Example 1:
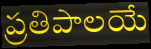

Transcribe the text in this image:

ప్రతిపాలయే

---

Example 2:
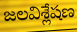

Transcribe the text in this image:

జలవిశ్లేషణ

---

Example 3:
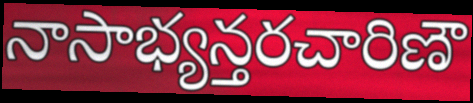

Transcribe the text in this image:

నాసాభ్యన్తరచారిణౌ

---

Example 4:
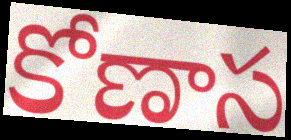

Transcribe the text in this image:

కోణాస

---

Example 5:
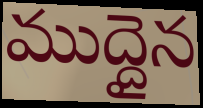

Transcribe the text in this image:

ముద్దైన